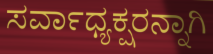
ಸರ್ವಾಧ್ಯಕ್ಷರನ್ನಾಗಿ